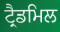
ਟ੍ਰੈਡਮਿਲ